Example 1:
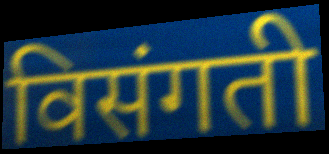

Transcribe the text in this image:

विसंगती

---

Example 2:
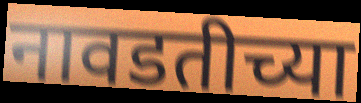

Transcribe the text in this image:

नावडतीच्या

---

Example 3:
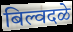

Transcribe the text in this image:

बिल्वदळे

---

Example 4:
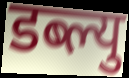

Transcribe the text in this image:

डब्ल्यु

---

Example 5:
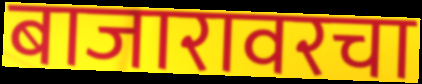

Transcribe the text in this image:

बाजारावरचा